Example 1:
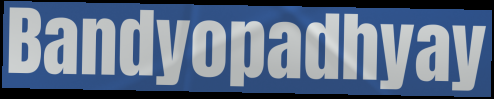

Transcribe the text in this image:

Bandyopadhyay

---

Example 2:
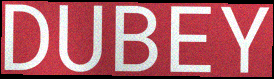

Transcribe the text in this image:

DUBEY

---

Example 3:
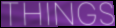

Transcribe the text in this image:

THINGS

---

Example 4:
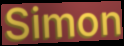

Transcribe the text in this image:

Simon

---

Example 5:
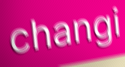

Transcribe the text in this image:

changi